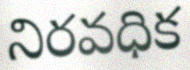
నిరవధిక